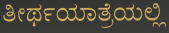
ತೀರ್ಥಯಾತ್ರೆಯಲ್ಲಿ